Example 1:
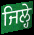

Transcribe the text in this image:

ਜਿਲ੍ਹੇ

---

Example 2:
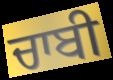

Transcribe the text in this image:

ਚਾਬੀ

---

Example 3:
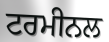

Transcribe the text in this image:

ਟਰਮੀਨਲ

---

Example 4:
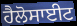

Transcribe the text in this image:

ਹੈਲੋਸਾਈਟ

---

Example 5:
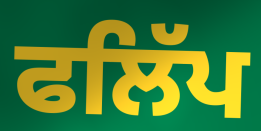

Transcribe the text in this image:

ਫਲਿੱਪ